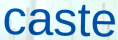
caste